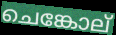
ചെങ്കോല്